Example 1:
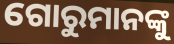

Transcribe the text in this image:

ଗୋରୁମାନଙ୍କୁ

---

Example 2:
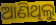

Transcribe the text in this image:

ଆଣିଥିଲୁ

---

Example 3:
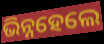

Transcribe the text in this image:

ଭିନ୍ନହେଲେ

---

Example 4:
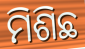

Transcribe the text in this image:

ମିଶିଛ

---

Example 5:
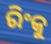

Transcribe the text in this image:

ରିଂକୁ